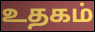
உதகம்